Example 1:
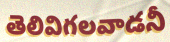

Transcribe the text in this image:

తెలివిగలవాడనీ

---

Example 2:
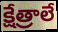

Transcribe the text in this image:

క్షేత్రాలే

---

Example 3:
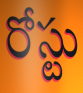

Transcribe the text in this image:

రోస్టు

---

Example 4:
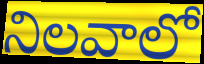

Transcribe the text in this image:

నిలవాలో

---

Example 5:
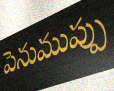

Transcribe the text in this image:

పెనుముప్పు